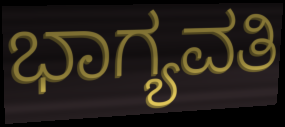
ಭಾಗ್ಯವತಿ